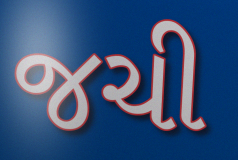
જચી